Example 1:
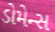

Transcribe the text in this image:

ડોમેન્સ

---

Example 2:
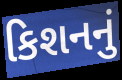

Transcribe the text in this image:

કિશનનું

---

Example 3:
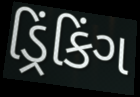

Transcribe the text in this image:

ડ્રિંકિંગ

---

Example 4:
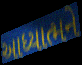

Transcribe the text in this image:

આધ્યાત્મને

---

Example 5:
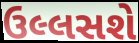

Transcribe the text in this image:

ઉલ્લસશે